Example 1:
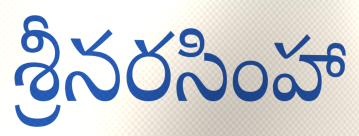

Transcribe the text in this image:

శ్రీనరసింహా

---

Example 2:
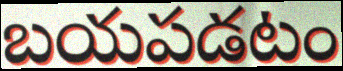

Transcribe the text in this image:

బయపడటం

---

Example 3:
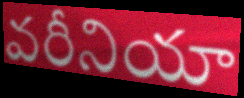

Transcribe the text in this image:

వరీనియా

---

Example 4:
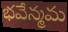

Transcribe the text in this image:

భవేన్మమ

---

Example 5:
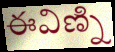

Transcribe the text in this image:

ఈవిణ్ని